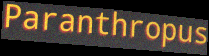
Paranthropus